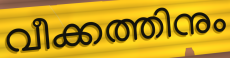
വീക്കത്തിനും